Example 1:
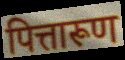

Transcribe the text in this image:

पित्तारूण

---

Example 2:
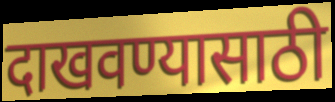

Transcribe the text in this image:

दाखवण्यासाठी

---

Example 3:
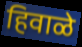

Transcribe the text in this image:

हिवाळे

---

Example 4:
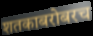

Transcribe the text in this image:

शतकाबरोबरच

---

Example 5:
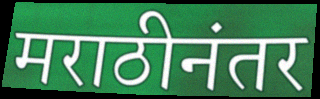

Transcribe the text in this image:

मराठीनंतर